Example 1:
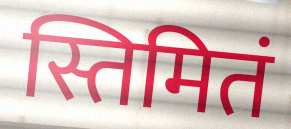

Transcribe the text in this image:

स्तिमितं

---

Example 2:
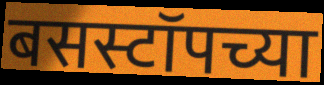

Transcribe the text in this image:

बसस्टॉपच्या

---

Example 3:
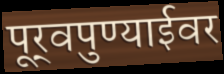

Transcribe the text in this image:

पूर्वपुण्याईवर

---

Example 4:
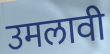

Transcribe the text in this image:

उमलावी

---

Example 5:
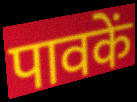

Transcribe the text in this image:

पावकें